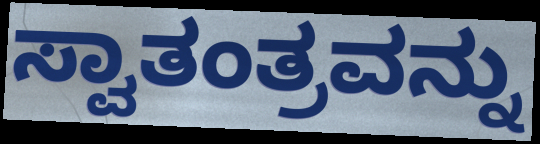
ಸ್ವಾತಂತ್ರವನ್ನು